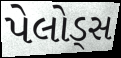
પેલોડ્સ